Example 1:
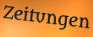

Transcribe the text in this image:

Zeitungen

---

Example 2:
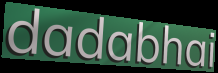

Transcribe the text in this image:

dadabhai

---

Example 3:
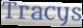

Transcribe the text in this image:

Tracys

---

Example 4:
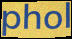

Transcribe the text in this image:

phol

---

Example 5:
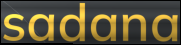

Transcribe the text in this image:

sadana